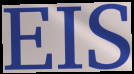
EIS